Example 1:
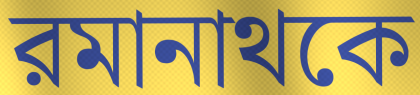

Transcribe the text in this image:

রমানাথকে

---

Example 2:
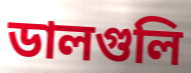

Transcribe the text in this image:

ডালগুলি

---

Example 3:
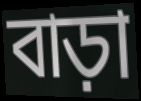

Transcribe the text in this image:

বাড়া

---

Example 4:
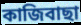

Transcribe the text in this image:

কাজিবাছা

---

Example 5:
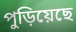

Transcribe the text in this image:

পুড়িয়েছে